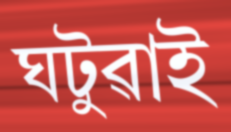
ঘটুৱাই